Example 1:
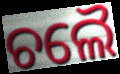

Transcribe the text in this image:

ଚଲୈ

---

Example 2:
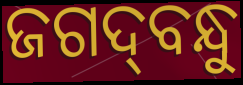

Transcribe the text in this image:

ଜଗଦ୍‌ବନ୍ଧୁ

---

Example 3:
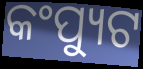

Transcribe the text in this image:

କଂପ୍ୟୁଟ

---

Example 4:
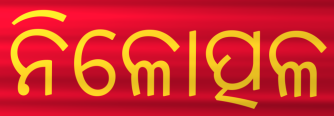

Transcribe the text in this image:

ନିଳୋତ୍ପଳ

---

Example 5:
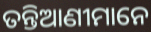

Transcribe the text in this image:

ତନ୍ତିଆଣୀମାନେ